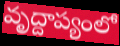
వృద్దాప్యంలో